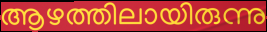
ആഴത്തിലായിരുന്നു